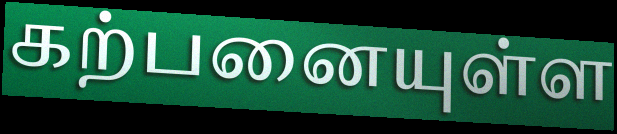
கற்பனையுள்ள